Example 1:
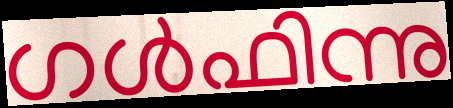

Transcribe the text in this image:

ഗൾഫിന്നു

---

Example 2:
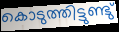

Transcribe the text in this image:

കൊടുത്തിട്ടുണ്ടു്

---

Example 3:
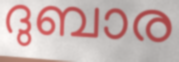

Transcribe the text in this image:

ദുബാര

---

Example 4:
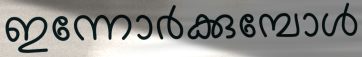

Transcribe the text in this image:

ഇന്നോർക്കുമ്പോൾ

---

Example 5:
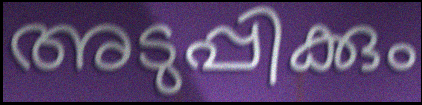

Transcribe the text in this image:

അടുപ്പിക്കും